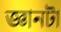
জ্ঞানটা